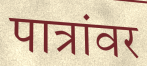
पात्रांवर